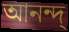
আনন্দ্